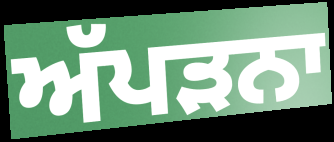
ਅੱਪੜਨਾ